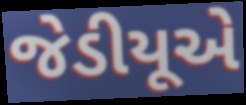
જેડીયૂએ